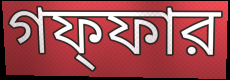
গফ্ফার